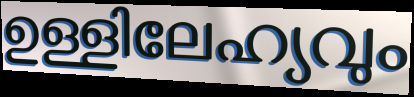
ഉള്ളിലേഹ്യവും